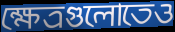
ক্ষেত্রগুলোতেও